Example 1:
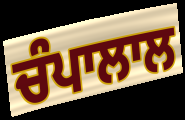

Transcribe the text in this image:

ਚੰਪਾਲਾਲ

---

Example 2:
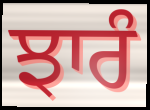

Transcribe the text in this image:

ਝਾਰੰ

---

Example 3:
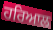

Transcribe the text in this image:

ਹਰਿਆਲ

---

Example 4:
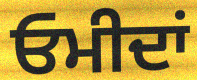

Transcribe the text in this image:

ਓਮੀਦਾਂ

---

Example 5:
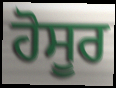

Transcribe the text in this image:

ਹੋਸੂਰ